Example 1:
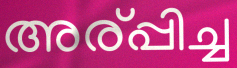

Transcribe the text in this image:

അര്പ്പിച്ച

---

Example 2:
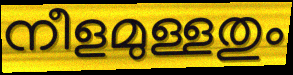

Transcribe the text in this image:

നീളമുള്ളതും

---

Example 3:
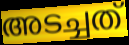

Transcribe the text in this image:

അടച്ചത്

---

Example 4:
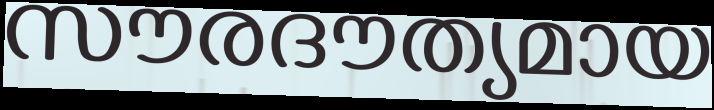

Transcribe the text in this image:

സൗരദൗത്യമായ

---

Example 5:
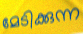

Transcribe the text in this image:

മേടിക്കുന്ന